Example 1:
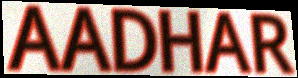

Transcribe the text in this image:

AADHAR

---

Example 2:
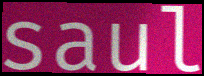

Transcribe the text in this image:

saul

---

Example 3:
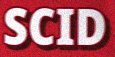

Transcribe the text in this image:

SCID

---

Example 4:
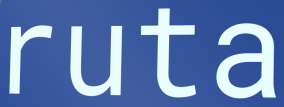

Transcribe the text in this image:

ruta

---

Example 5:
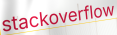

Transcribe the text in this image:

stackoverflow